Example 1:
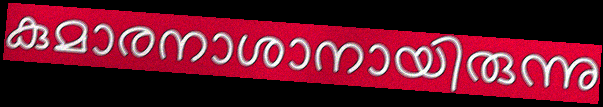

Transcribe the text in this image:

കുമാരനാശാനായിരുന്നു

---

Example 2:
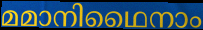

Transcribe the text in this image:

മമാനിഥൈനാം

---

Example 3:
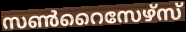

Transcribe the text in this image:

സൺറൈസേഴ്സ്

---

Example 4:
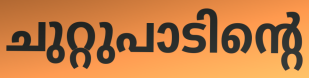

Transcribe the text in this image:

ചുറ്റുപാടിന്റെ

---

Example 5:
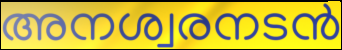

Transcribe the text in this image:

അനശ്വരനടൻ